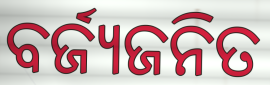
ବର୍ଜ୍ୟଜନିତ